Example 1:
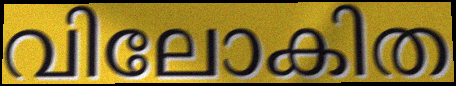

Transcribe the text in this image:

വിലോകിത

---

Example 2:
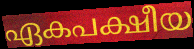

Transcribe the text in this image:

ഏകപക്ഷീയ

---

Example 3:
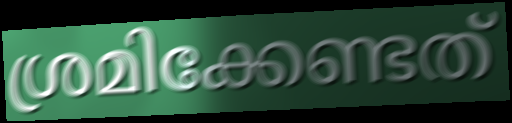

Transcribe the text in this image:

ശ്രമിക്കേണ്ടത്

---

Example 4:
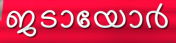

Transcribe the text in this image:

ജടായോർ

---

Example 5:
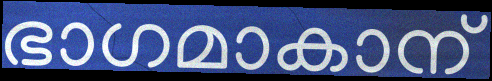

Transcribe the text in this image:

ഭാഗമാകാന്